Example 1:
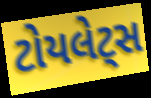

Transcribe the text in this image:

ટોયલેટ્સ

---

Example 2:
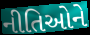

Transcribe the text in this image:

નીતિઓને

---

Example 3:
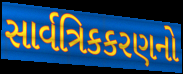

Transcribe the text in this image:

સાર્વત્રિકકરણનો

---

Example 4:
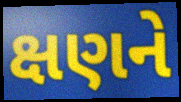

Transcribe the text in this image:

ક્ષણને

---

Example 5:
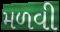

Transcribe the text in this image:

મળવી